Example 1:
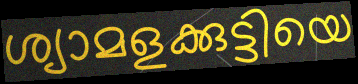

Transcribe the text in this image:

ശ്യാമളക്കുട്ടിയെ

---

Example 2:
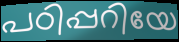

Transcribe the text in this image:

പഠിപ്പറിയേ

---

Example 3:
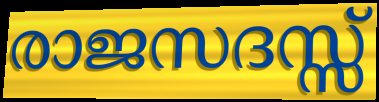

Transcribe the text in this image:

രാജസദസ്സ്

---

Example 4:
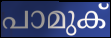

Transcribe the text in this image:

പാമുക്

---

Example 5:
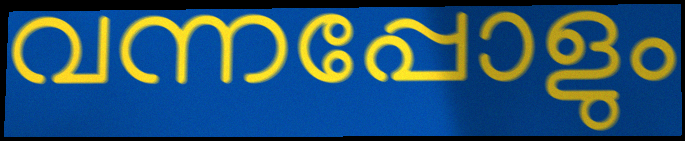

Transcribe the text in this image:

വന്നപ്പോളും